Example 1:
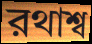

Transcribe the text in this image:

রথাশ্ব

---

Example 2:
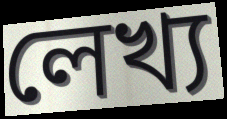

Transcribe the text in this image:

লেখ্য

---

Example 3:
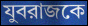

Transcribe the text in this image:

যুবরাজকে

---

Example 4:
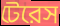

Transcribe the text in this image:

টেরেস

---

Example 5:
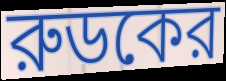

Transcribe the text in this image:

রুডকের